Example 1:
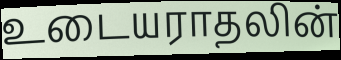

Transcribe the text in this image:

உடையராதலின்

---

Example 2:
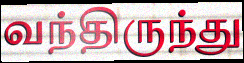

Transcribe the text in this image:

வந்திருந்து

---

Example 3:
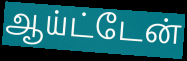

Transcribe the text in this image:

ஆய்ட்டேன்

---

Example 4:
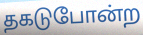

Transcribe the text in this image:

தகடுபோன்ற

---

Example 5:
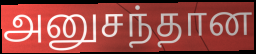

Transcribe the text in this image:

அனுசந்தான